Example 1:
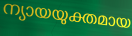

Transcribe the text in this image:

ന്യായയുക്തമായ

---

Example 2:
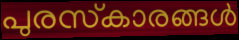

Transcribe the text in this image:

പുരസ്‌കാരങ്ങൾ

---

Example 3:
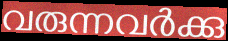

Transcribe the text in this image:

വരുന്നവർക്കു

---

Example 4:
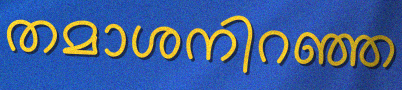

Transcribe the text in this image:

തമാശനിറഞ്ഞ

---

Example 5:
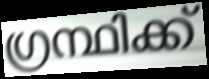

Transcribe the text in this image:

ഗ്രന്ഥിക്ക്